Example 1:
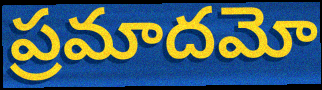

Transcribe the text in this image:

ప్రమాదమో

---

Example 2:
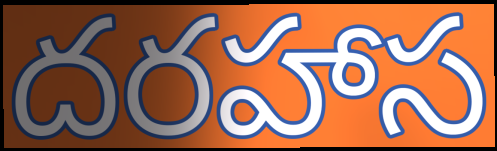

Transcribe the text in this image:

దరహాస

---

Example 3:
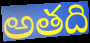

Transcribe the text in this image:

అతది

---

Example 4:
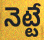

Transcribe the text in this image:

నెట్టే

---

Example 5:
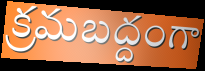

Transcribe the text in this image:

క్రమబద్దంగా